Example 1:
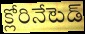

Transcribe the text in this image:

క్లోరినేటెడ్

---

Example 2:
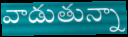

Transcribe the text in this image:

వాడుతున్నా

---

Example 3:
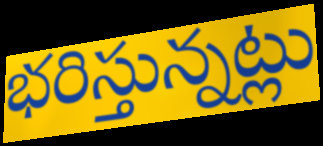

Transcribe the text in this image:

భరిస్తున్నట్లు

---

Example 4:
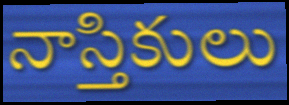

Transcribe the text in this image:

నాస్తికులు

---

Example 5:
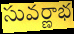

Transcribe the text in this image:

సువర్ణాభ